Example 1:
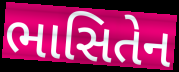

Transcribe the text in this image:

ભાસિતેન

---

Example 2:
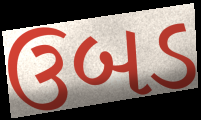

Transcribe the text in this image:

ઉબડ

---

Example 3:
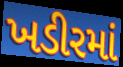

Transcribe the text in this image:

ખડીરમાં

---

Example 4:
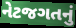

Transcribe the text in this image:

નેટજગતનું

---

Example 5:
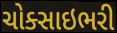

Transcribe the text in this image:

ચોક્સાઇભરી